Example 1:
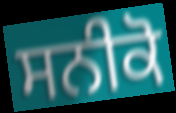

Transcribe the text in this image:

ਸਨੀਕੋ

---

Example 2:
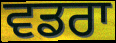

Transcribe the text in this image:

ਵਡਰਾ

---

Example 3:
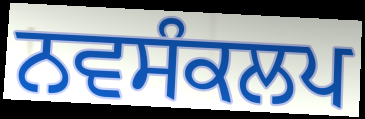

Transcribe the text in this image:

ਨਵਸੰਕਲਪ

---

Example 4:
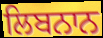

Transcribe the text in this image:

ਲਿਬਨਾਨ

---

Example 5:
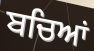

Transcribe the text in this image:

ਬਚਿਆਂ